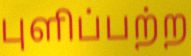
புளிப்பற்ற